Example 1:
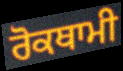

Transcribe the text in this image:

ਰੋਕਥਾਮੀ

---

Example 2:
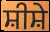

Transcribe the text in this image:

ਸ਼ੀਸ਼ੇ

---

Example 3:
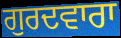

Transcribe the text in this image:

ਗੁਰਦਵਾਰਾ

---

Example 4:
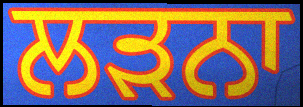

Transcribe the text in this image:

ਲੜਨਾ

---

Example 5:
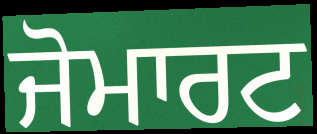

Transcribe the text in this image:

ਜੋਮਾਰਟ